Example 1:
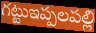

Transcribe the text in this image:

గట్టుఇప్పలపల్లి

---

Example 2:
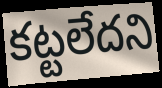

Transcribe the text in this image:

కట్టలేదని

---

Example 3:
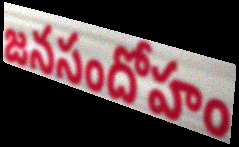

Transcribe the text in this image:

జనసందోహం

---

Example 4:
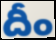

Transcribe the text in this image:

దీం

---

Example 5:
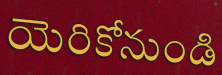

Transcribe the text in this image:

యెరికోనుండి